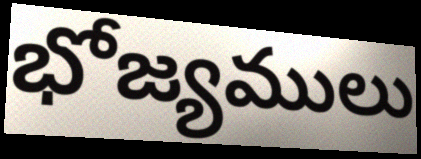
భోజ్యములు